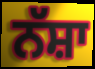
ਨੱਸ਼ਾ